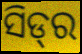
ସିଡ୍‌ର